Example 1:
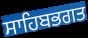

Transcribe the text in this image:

ਸਾਹਿਬਭਗਤ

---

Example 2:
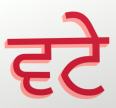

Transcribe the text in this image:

ਵਟੇ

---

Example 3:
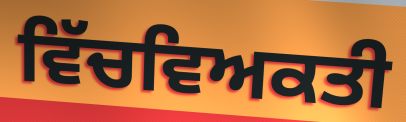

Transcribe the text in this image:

ਵਿੱਚਵਿਅਕਤੀ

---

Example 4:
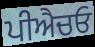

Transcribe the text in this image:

ਪੀਐਚਓ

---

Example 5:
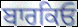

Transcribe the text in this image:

ਬਾਰਕਿਓ